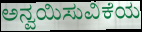
ಅನ್ವಯಿಸುವಿಕೆಯ